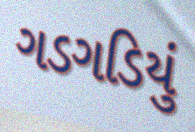
ગડગડિયું